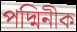
পদ্মিনীক